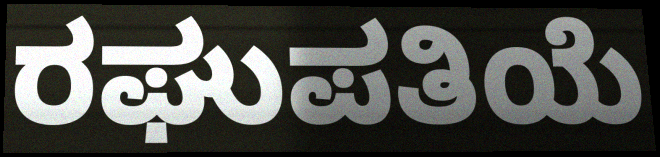
ರಘುಪತಿಯೆ